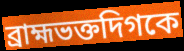
ব্রাহ্মভক্তদিগকে